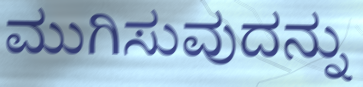
ಮುಗಿಸುವುದನ್ನು